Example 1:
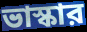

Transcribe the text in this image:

ভাস্কার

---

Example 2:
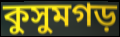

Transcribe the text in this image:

কুসুমগড়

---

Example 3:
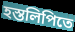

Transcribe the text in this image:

হস্তলিপিতে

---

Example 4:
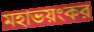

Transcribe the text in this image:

মহাভয়ংকর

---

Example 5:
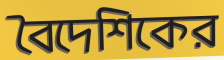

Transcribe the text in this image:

বৈদেশিকের